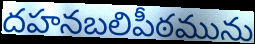
దహనబలిపీఠమును